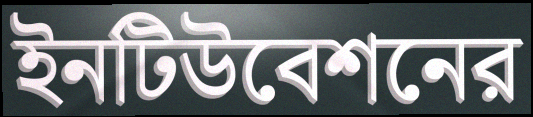
ইনটিউবেশনের